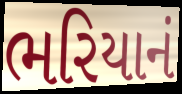
ભરિયાનં